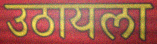
उठायला